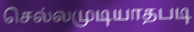
செல்லமுடியாதபடி